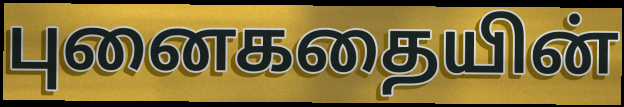
புனைகதையின்